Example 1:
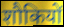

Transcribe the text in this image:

शौकियों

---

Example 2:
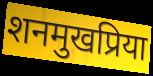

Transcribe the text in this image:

शनमुखप्रिया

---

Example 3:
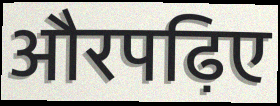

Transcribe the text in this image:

औरपढ़िए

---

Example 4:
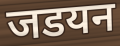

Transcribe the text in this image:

जडयन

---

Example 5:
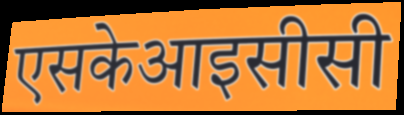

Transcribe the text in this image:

एसकेआइसीसी